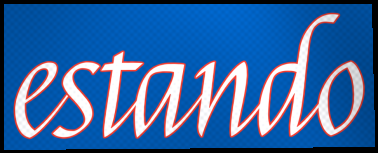
estando